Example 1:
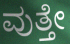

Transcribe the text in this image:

ವುತ್ತೇ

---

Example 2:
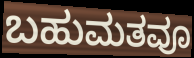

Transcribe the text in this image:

ಬಹುಮತವೂ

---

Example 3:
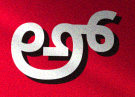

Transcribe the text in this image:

ಅ್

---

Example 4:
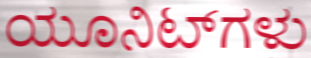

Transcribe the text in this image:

ಯೂನಿಟ್‌ಗಳು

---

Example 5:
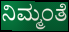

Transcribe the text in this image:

ನಿಮ್ಮಂತೆ